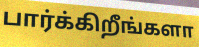
பார்க்கிறீங்களா